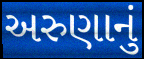
અરુણાનું